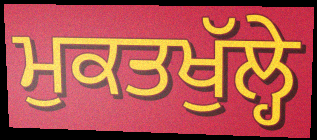
ਮੁਕਤਖੁੱਲ੍ਹੇ